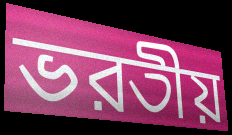
ভরতীয়